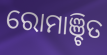
ରୋମାଞ୍ଚିତ